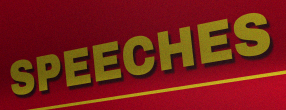
SPEECHES